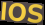
IOS